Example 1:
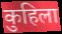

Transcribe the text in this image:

कुहिला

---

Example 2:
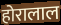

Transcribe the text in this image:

होरालाल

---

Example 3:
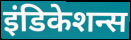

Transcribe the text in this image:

इंडिकेशन्स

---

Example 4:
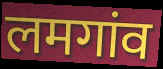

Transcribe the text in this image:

लमगांव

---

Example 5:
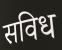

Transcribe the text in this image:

सविध